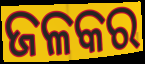
ଜଳକର